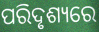
ପରିଦୃଶ୍ୟରେ